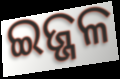
ଇଜ୍ଜଳ